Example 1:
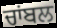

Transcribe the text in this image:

ਚਾਂਬਲ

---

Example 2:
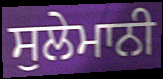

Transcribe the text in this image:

ਸੁਲੇਮਾਨੀ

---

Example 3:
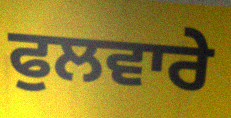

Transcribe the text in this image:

ਫੁਲਵਾਰੇ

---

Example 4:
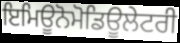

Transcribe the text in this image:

ਇਮਿਊਨੋਮੋਡਿਊਲੇਟਰੀ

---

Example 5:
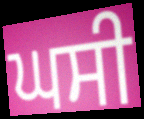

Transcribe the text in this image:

ਘਸੀ